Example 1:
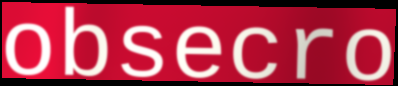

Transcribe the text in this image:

obsecro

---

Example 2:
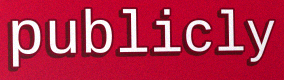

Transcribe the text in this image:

publicly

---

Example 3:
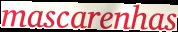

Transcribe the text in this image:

mascarenhas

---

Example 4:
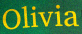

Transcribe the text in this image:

Olivia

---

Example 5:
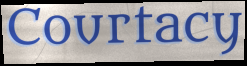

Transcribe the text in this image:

Courtacy